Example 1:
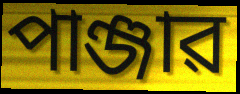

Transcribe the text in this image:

পাঞ্জাৱ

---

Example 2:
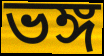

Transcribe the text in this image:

ভঙ্গ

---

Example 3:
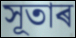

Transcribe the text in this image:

সূতাৰ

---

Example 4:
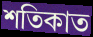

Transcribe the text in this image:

শতিকাত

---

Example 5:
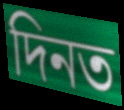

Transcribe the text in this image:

দিনত